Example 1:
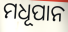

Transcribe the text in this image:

ମଧୂପାନ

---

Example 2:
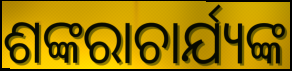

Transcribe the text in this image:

ଶଙ୍କରାଚାର୍ଯ୍ୟଙ୍କ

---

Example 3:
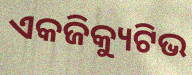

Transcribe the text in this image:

ଏକଜିକ୍ୟୁଟିଭ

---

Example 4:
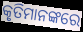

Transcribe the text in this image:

କୃତିମାନଙ୍କରେ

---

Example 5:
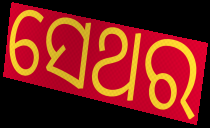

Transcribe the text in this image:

ସେଥର